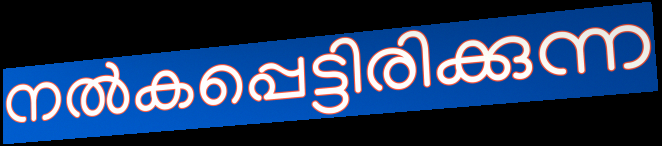
നൽകപ്പെട്ടിരിക്കുന്ന